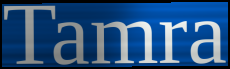
Tamra